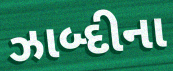
ઝાબ્દીના